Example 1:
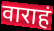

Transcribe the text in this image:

वाराहं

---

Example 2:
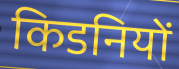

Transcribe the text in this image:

किडनियों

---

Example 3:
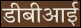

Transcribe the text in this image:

डीबीआई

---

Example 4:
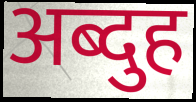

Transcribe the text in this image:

अब्दुह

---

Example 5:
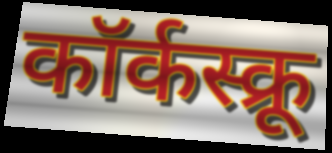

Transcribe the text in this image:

कॉर्कस्क्रू